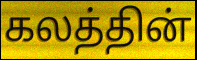
கலத்தின்